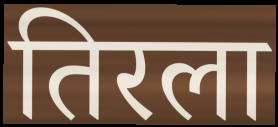
तिरला